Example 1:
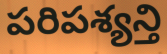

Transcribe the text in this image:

పరిపశ్యన్తి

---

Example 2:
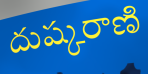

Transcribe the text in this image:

దుష్కరాణి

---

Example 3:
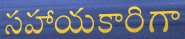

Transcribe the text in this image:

సహాయకారిగా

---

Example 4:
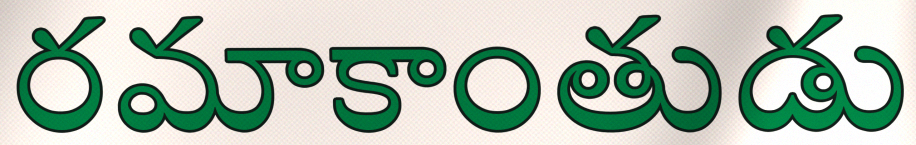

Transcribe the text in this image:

రమాకాంతుడు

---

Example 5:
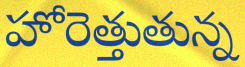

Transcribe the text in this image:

హోరెత్తుతున్న